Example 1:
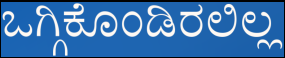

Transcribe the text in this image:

ಒಗ್ಗಿಕೊಂಡಿರಲಿಲ್ಲ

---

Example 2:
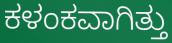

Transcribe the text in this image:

ಕಳಂಕವಾಗಿತ್ತು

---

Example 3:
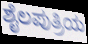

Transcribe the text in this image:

ಶೈಲಪುತ್ರಿಯ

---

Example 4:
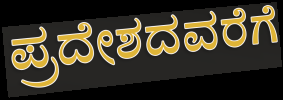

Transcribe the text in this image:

ಪ್ರದೇಶದವರೆಗೆ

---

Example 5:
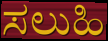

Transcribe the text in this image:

ಸಲುಹಿ